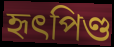
হৃৎপিণ্ড